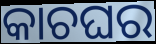
କାଚଘର